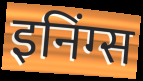
इनिंग्स